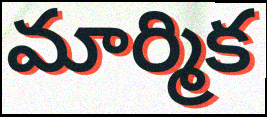
మార్మిక